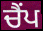
ਚੈਂਪ